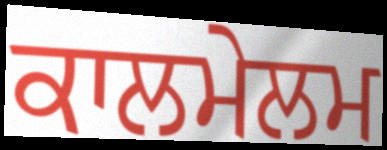
ਕਾਲਮੇਲਮ